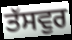
ਤੱਸਵੁਰ